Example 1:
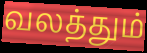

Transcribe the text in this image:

வலத்தும்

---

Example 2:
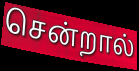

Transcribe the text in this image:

சென்றால்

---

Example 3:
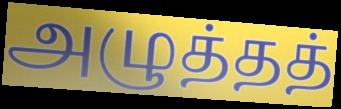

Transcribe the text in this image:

அழுத்தத்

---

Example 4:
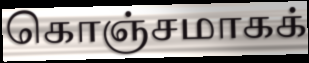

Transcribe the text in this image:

கொஞ்சமாகக்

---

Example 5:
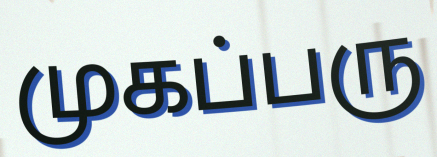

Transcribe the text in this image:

முகப்பரு